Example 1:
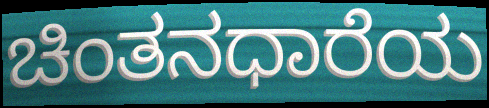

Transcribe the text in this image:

ಚಿಂತನಧಾರೆಯ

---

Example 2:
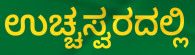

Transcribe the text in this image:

ಉಚ್ಚಸ್ವರದಲ್ಲಿ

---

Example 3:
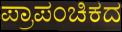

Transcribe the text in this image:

ಪ್ರಾಪಂಚಿಕದ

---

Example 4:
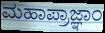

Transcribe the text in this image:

ಮಹಾಪ್ರಾಜ್ಞಾಂ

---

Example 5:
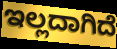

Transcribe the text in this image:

ಇಲ್ಲದಾಗಿದೆ